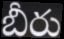
బీరు